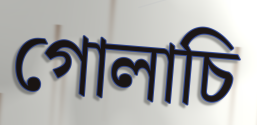
গোলাচি